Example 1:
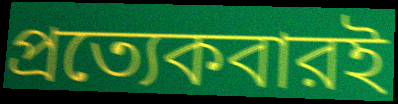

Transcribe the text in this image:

প্রত্যেকবারই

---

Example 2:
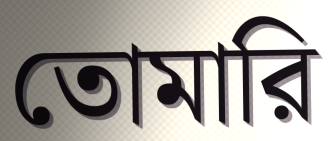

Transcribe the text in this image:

তোমারি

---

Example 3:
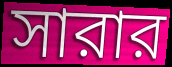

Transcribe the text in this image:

সারার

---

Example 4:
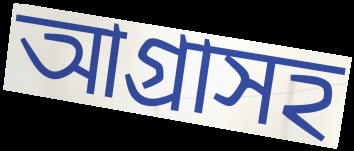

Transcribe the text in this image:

আগ্রাসহ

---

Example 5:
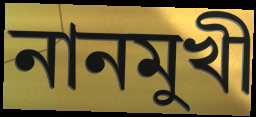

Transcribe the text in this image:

নানমুখী